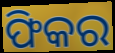
ଫିକର